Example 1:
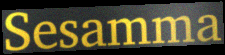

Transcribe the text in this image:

Sesamma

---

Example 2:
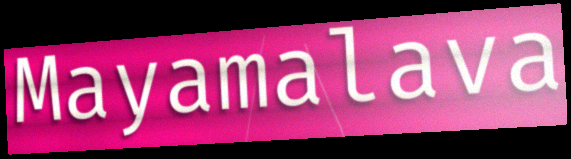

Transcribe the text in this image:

Mayamalava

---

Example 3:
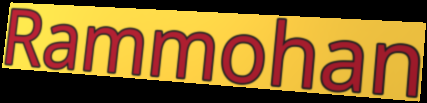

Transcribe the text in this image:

Rammohan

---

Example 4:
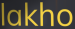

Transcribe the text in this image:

lakho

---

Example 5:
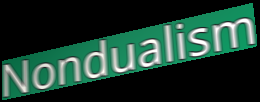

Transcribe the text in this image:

Nondualism